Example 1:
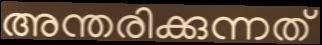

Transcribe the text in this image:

അന്തരിക്കുന്നത്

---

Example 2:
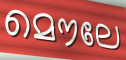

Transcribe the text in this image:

മൌലേ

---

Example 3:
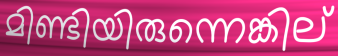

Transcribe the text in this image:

മിണ്ടിയിരുന്നെങ്കില്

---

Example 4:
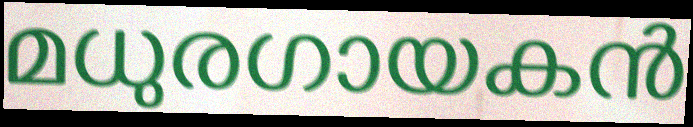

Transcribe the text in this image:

മധുരഗായകൻ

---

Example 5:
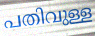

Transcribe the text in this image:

പതിവുള്ള